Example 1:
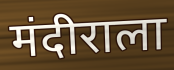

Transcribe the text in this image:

मंदीराला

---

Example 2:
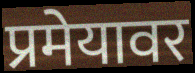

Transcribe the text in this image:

प्रमेयावर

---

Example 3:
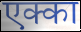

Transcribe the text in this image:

एक्का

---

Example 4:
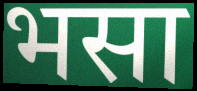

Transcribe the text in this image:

भसा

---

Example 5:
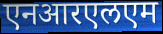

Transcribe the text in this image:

एनआरएलएम